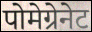
पोमेग्रेनेट